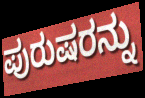
ಪುರುಷರನ್ನು